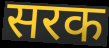
सरक